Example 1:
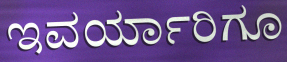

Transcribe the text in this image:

ಇವರ್ಯಾರಿಗೂ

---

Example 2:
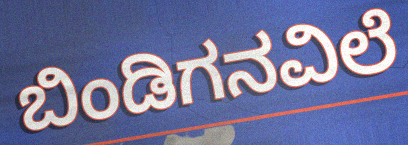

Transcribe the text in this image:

ಬಿಂಡಿಗನವಿಲೆ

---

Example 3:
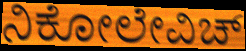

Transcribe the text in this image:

ನಿಕೋಲೇವಿಚ್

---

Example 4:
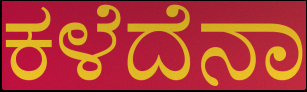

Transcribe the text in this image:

ಕಳೆದೆನಾ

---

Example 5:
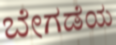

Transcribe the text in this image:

ಬೇಗಡೆಯ